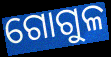
ଗୋଗୁଳ